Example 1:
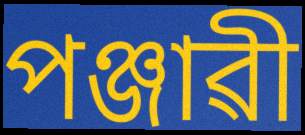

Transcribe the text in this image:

পঞ্জাৱী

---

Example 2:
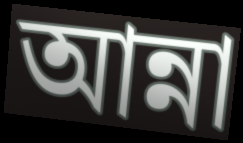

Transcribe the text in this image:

আন্না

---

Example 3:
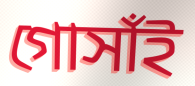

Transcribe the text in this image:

গোসাঁই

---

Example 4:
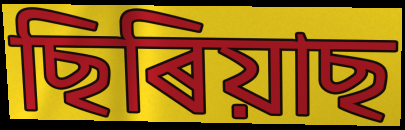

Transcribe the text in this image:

ছিৰিয়াছ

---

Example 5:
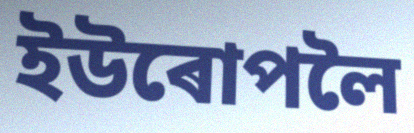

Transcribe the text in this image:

ইউৰোপলৈ